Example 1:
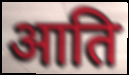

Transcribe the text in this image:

आति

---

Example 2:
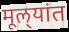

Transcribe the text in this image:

मूल्यांत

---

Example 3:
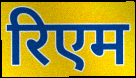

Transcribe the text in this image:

रिएम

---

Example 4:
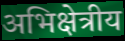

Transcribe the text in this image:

अभिक्षेत्रीय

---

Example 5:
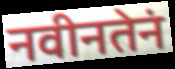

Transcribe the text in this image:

नवीनतेनं